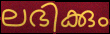
ലഭിക്കും